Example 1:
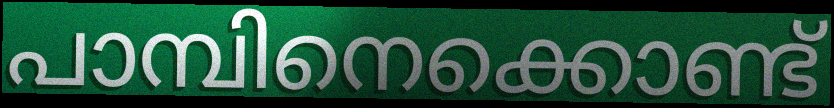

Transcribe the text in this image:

പാമ്പിനെക്കൊണ്ട്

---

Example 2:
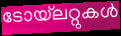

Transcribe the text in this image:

ടോയ്‌ലറ്റുകൾ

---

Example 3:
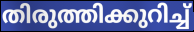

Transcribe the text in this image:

തിരുത്തിക്കുറിച്ച്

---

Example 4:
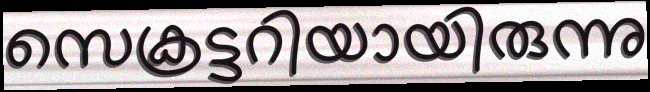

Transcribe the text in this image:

സെക്രട്ടറിയായിരുന്നു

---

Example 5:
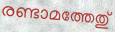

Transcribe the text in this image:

രണ്ടാമത്തേതു്